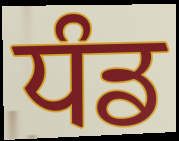
ਧੰਡ